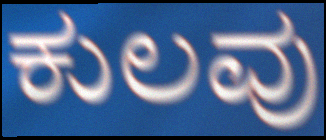
ಕುಲವು